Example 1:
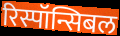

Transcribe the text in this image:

रिस्पॉन्सिबल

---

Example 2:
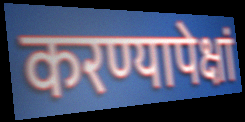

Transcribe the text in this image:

करण्यापेक्षां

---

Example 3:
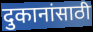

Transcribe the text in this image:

दुकानांसाठी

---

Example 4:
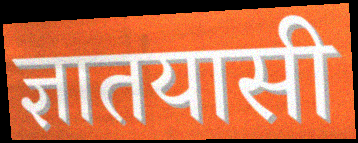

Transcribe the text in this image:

ज्ञातयासी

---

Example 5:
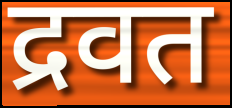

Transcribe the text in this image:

द्रवत